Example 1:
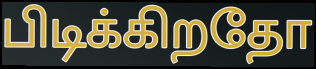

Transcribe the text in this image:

பிடிக்கிறதோ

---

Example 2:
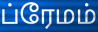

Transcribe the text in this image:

ப்ரேமம்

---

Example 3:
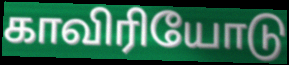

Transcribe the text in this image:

காவிரியோடு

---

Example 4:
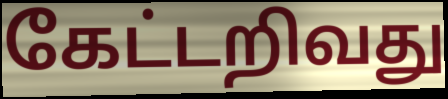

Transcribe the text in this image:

கேட்டறிவது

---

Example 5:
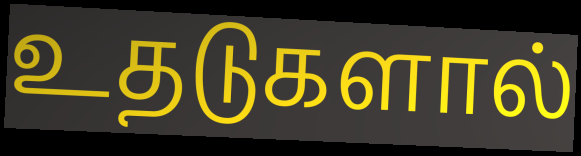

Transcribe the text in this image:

உதடுகளால்